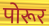
पोरूर